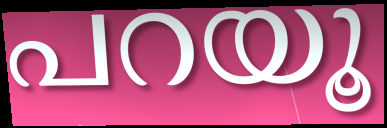
പറയൂ